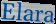
Elara